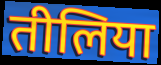
तीलिया